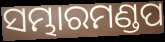
ସମ୍ଭାରମଣ୍ଡପ